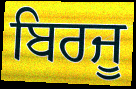
ਬਿਰਜੂ